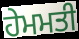
ਹੇਮਮਤੀ